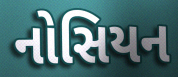
નોસિયન